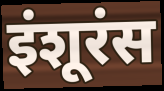
इंशूरंस